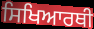
ਸਿਖਿਆਰਥੀ